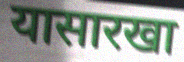
यासारखा